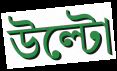
উল্টো